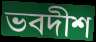
ভবদীশ